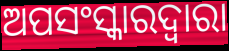
ଅପସଂସ୍କାରଦ୍ୱାରା